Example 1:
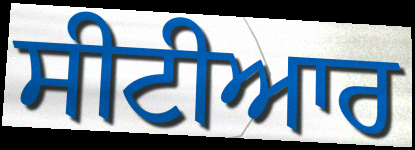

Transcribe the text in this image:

ਸੀਟੀਆਰ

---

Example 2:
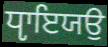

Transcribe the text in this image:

ਧੵਾਇਯਉ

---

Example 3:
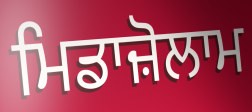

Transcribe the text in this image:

ਮਿਡਾਜ਼ੋਲਾਮ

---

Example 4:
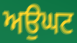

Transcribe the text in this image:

ਅਉਘਟ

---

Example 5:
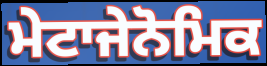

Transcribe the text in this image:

ਮੇਟਾਜੇਨੋਮਿਕ